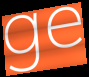
ge